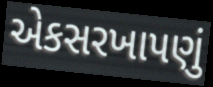
એકસરખાપણું